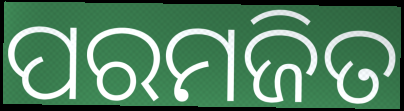
ପରମଜିତ